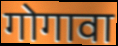
गोगावा